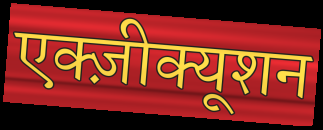
एक्ज़ीक्यूशन